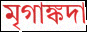
মৃগাঙ্কদা